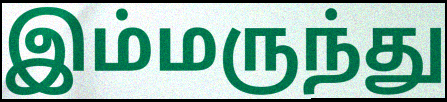
இம்மருந்து